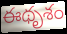
ఈథృశం